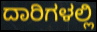
ದಾರಿಗಳಲ್ಲಿ